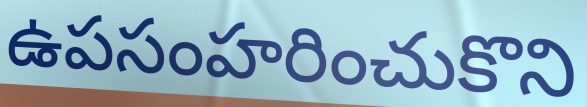
ఉపసంహరించుకొని